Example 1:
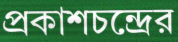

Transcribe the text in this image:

প্রকাশচন্দ্রের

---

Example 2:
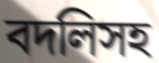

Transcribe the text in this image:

বদলিসহ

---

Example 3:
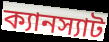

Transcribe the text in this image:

ক্যানস্যাট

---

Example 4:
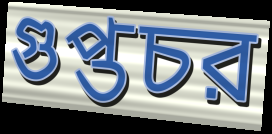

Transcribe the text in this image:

গুপ্তচর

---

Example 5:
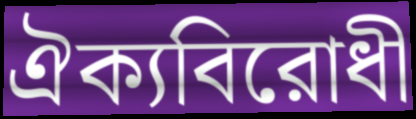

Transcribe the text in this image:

ঐক্যবিরোধী